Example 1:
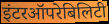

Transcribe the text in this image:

इंटरऑपरेबिलिटी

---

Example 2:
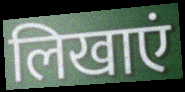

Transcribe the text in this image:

लिखाएं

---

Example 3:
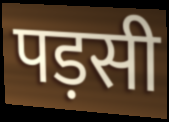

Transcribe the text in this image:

पड़सी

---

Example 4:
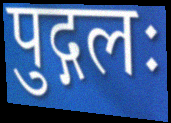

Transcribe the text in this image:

पुद्गलः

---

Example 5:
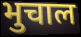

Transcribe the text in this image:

भुचाल